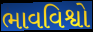
ભાવવિશ્વો